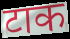
टाक